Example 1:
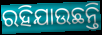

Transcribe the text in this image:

ରହିଯାଉଛନ୍ତି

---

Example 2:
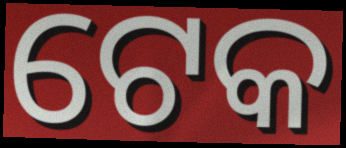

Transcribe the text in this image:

ଟେକ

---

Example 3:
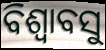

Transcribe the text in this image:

ବିଶ୍ୱାବସୁ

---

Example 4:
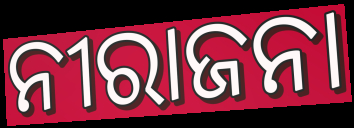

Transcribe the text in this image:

ନୀରାଜନା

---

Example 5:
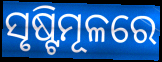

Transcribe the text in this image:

ସୃଷ୍ଟିମୂଳରେ